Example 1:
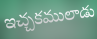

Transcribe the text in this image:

ఇచ్చకములాడు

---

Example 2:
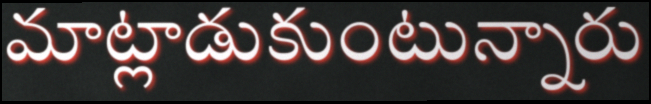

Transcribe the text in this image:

మాట్లాడుకుంటున్నారు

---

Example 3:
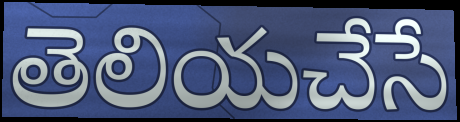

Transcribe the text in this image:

తెలియచేసే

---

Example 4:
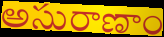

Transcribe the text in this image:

అసురాణాం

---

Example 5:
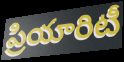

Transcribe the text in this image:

ప్రియారిటీ